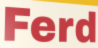
Ferd